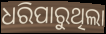
ଧରିପାରୁଥିଲା